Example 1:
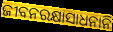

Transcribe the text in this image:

ଜୀବନରକ୍ଷାସାଧନାନି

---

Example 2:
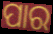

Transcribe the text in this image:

ପାର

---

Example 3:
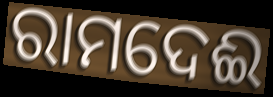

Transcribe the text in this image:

ରାମଦେଈ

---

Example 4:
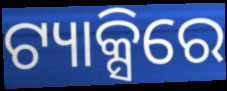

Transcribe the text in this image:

ଟ୍ୟାକ୍ସିରେ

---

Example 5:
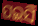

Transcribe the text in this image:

ପଇସି